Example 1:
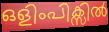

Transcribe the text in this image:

ഒളിംപിക്സിൽ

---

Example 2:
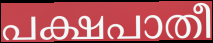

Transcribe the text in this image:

പക്ഷപാതീ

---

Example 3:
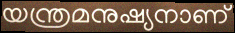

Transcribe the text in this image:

യന്ത്രമനുഷ്യനാണ്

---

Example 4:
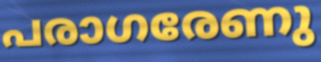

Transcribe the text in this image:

പരാഗരേണു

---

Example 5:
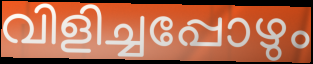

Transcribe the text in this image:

വിളിച്ചപ്പോഴും